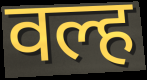
वल्ह